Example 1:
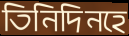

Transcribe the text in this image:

তিনিদিনহে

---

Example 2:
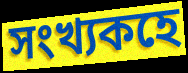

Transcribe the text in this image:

সংখ্যকহে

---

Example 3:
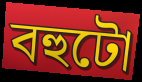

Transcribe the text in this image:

বহুটো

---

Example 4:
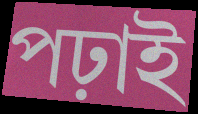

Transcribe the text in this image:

পঢ়াই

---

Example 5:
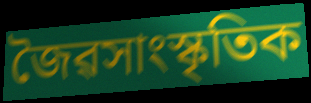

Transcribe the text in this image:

জৈৱসাংস্কৃতিক